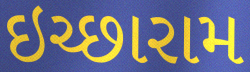
ઇચ્છારામ